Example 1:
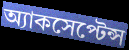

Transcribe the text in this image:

অ্যাকসেপ্টেন্স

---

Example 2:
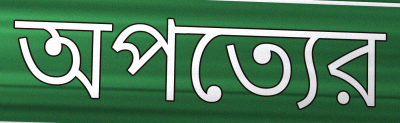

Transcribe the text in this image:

অপত্যের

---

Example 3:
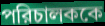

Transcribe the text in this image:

পরিচালককে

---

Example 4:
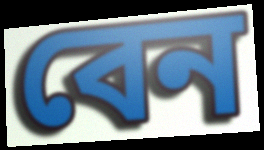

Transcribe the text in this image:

বেন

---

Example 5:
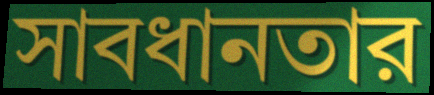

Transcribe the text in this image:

সাবধানতার